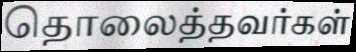
தொலைத்தவர்கள்